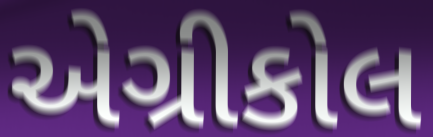
એગ્રીકોલ